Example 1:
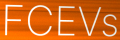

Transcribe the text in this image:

FCEVs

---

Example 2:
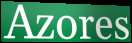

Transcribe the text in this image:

Azores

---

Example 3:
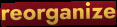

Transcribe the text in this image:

reorganize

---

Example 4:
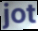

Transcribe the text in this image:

jot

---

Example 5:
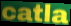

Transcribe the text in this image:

catla